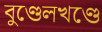
বুণ্ডেলখণ্ডে